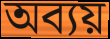
অব্যয়